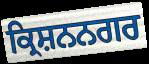
ਕ੍ਰਿਸ਼ਨਨਗਰ